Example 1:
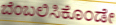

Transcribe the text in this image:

ಬೆಂಬಲಿಸಿಕೊಂಡೇ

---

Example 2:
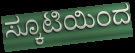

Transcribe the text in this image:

ಸ್ಕೂಟಿಯಿಂದ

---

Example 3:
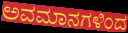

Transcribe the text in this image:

ಅವಮಾನಗಳಿಂದ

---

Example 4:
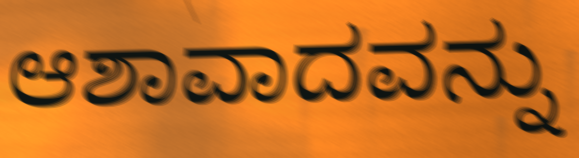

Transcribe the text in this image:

ಆಶಾವಾದವನ್ನು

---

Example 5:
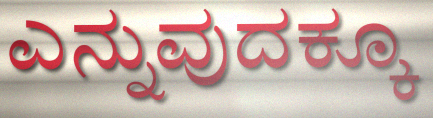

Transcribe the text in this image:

ಎನ್ನುವುದಕ್ಕೂ